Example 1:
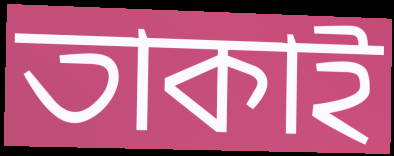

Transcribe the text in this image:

তাকাই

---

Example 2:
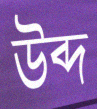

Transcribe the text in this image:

উব্দ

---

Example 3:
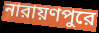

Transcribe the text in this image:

নারায়ণপুরে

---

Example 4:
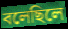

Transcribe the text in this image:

বলেছিলে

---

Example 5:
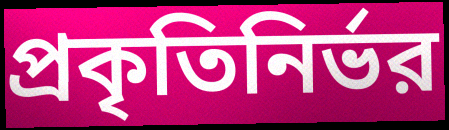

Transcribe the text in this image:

প্রকৃতিনির্ভর